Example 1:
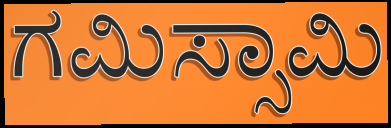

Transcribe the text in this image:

ಗಮಿಸ್ಸಾಮಿ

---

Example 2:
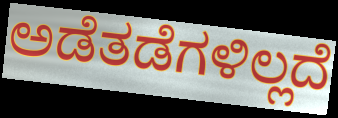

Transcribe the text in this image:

ಅಡೆತಡೆಗಳಿಲ್ಲದೆ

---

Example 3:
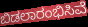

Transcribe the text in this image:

ಬಿಡಲಾರಂಭಿಸಿವೆ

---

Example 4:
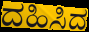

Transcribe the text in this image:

ದಹಿಸಿದ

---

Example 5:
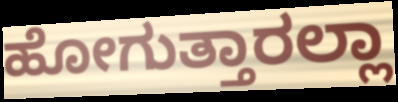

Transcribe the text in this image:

ಹೋಗುತ್ತಾರಲ್ಲಾ